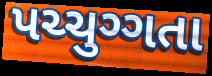
પચ્ચુગ્ગતા